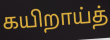
கயிறாய்த்